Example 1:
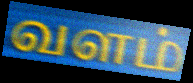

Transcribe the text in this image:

வளம்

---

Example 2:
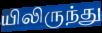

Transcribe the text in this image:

யிலிருந்து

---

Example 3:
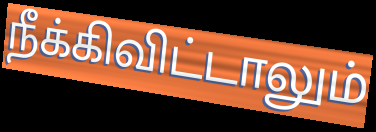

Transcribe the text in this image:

நீக்கிவிட்டாலும்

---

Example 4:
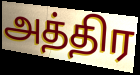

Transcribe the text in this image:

அத்திர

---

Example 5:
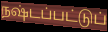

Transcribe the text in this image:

நஷ்டப்பட்டுப்